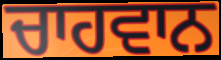
ਚਾਹਵਾਨ